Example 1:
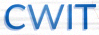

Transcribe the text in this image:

CWIT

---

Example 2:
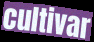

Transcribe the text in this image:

cultivar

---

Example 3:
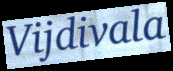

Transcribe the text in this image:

Vijdivala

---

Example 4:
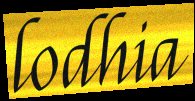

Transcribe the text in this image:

lodhia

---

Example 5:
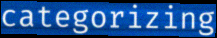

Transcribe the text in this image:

categorizing